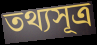
তথ্যসূত্র